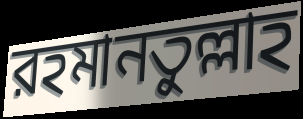
রহমানতুল্লাহ